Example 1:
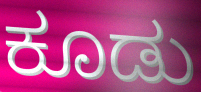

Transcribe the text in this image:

ಕೂಡು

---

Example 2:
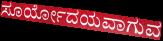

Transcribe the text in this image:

ಸೂರ್ಯೋದಯವಾಗುವ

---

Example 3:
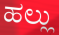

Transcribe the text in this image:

ಹಲ್ಲು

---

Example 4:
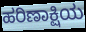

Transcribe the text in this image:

ಹರಿಣಾಕ್ಷಿಯ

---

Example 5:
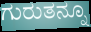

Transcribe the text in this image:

ಗುರುತನ್ನೂ